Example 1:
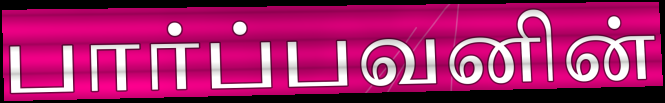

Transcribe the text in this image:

பார்ப்பவனின்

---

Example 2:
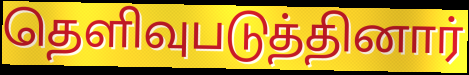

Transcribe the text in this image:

தெளிவுபடுத்தினார்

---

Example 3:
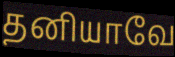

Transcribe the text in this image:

தனியாவே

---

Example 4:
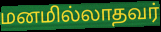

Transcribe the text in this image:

மனமில்லாதவர்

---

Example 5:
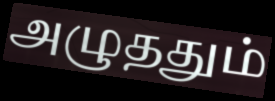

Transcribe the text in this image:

அழுததும்